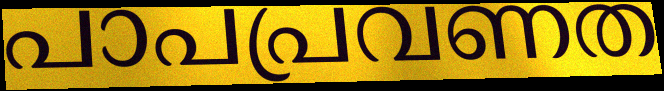
പാപപ്രവണത